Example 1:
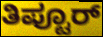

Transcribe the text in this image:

ತಿಪ್ಟೂರ್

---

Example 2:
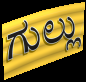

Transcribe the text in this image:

ಗುಲ್ಲು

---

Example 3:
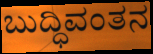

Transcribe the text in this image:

ಬುದ್ಧಿವಂತನ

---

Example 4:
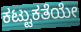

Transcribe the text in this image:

ಕಟ್ಟುಕತೆಯೇ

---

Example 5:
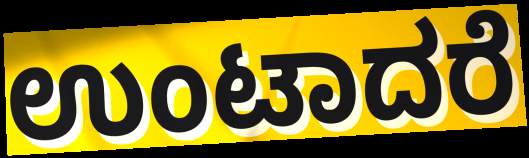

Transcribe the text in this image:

ಉಂಟಾದರೆ